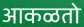
आकळतो